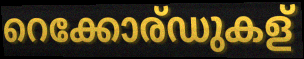
റെക്കോര്ഡുകള്